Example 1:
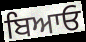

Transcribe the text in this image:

ਬਿਆਓ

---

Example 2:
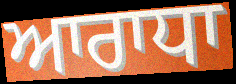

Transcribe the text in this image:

ਆਰਾਧਾ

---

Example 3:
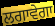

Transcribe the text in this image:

ਲਗਾਵੇਗਾ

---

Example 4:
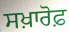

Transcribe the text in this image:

ਸਖ਼ਾਰੋਫ਼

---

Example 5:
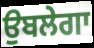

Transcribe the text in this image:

ਉਬਲੇਗਾ